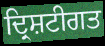
ਦ੍ਰਿਸ਼ਟੀਗਤ